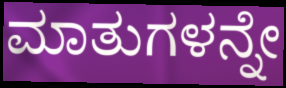
ಮಾತುಗಳನ್ನೇ